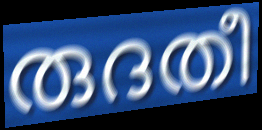
രുദതീ